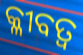
କ୍ଳୀବତ୍ବ